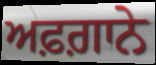
ਅਫ਼ਗ਼ਾਨੇ